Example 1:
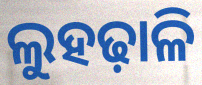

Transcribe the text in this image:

ଲୁହଢ଼ାଳି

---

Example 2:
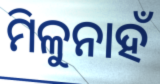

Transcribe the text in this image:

ମିଳୁନାହଁ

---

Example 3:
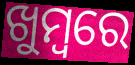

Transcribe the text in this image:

ଖୁମ୍ବରେ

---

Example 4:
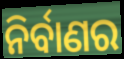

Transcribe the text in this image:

ନିର୍ବାଣର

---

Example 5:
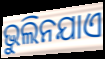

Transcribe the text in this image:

ଭୁଲିନଯାଏ